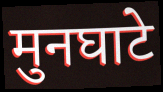
मुनघाटे